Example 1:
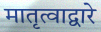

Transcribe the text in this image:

मातृत्वाद्वारे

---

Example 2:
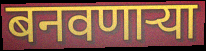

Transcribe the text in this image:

बनवणार्‍या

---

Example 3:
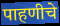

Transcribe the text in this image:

पाहणीचे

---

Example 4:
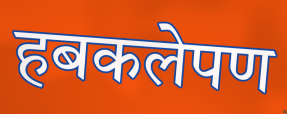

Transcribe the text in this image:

हबकलेपण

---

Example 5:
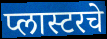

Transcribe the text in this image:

प्लास्टरचे